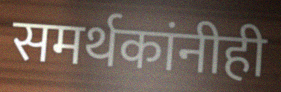
समर्थकांनीही